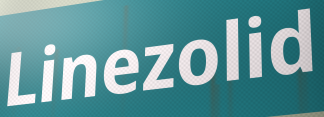
Linezolid